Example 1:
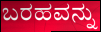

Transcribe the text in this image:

ಬರಹವನ್ನು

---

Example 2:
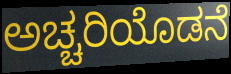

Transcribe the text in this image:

ಅಚ್ಚರಿಯೊಡನೆ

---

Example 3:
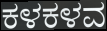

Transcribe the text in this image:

ಕಳಕಳವ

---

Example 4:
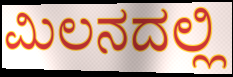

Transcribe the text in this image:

ಮಿಲನದಲ್ಲಿ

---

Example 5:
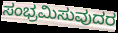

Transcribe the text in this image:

ಸಂಭ್ರಮಿಸುವುದರ